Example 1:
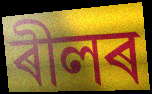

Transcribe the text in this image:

ৰীলৰ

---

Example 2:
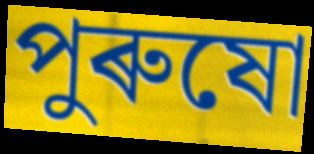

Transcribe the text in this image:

পুৰুষো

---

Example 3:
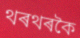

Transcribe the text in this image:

থৰথৰকৈ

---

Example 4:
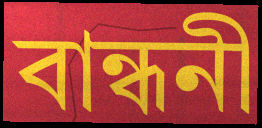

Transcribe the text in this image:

বান্ধনী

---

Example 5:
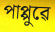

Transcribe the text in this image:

পাপ্পুৱে